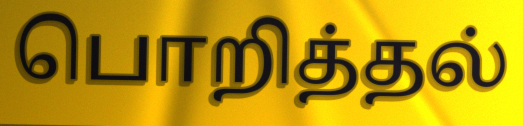
பொறித்தல்